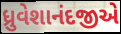
ધ્રુવેશાનંદજીએ